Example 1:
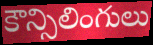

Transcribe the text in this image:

కౌన్సిలింగులు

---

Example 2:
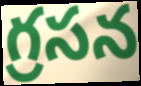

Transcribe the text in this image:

గ్రసన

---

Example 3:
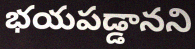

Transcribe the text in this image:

భయపడ్డానని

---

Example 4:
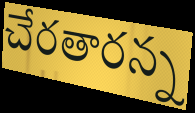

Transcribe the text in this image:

చేరతారన్న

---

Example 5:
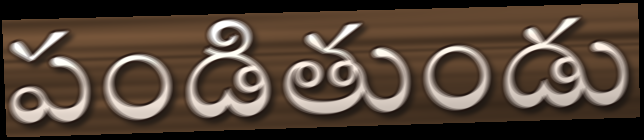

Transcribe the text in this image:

పండితుండు